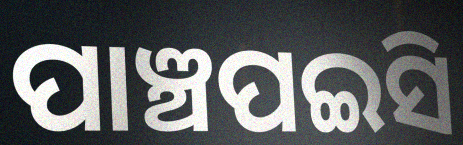
ପାଞ୍ଚପଇସି